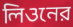
লিওনের